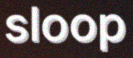
sloop